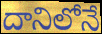
దానిలోనే